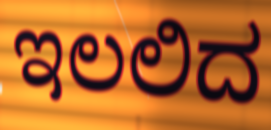
ಇಲಲಿದ